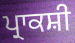
ਪ੍ਰਾਕਸ਼ੀ